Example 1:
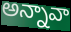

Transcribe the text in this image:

అన్నావా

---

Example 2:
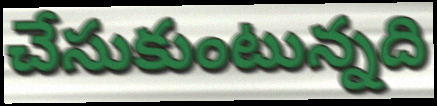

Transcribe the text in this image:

చేసుకుంటున్నది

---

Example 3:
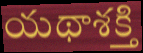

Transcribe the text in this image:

యథాశక్తి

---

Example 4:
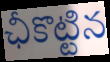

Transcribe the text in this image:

ఛీకొట్టిన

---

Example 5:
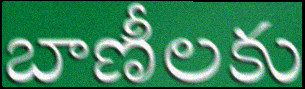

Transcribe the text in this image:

బాణీలకు